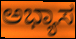
ಅಭ್ಯಾಸ